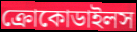
ক্রোকোডাইলস